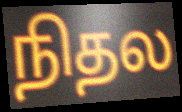
நிதல